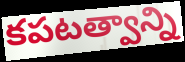
కపటత్వాన్ని